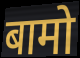
बामो